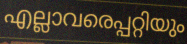
എല്ലാവരെപ്പറ്റിയും